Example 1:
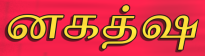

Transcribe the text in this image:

னகத்ஷ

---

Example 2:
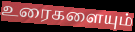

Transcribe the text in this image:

உரைகளையும்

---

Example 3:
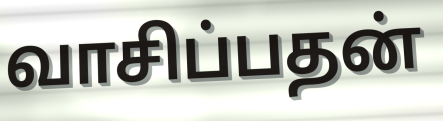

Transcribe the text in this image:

வாசிப்பதன்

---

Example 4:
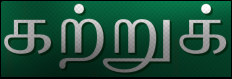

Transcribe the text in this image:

கற்றுக்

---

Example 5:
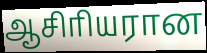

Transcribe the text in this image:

ஆசிரியரான